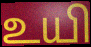
உயி